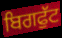
ਬਿਗਫੁੱਟ